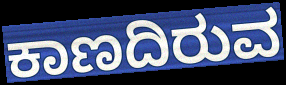
ಕಾಣದಿರುವ